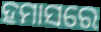
ହମାସରେ